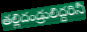
తల్లిదండ్రులిద్దరినీ